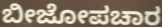
ಬೀಜೋಪಚಾರ